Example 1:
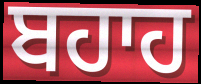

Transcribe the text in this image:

ਬਹਾਹ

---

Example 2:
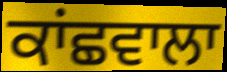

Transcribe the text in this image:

ਕਾਂਛਵਾਲਾ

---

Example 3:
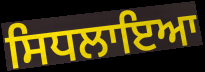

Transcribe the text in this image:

ਸਿਧਲਾਇਆ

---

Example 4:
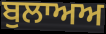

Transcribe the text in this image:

ਬੁਲਾਅਅ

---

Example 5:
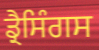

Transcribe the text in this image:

ਡ੍ਰੈਸਿੰਗਸ